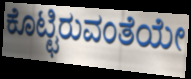
ಕೊಟ್ಟಿರುವಂತೆಯೇ